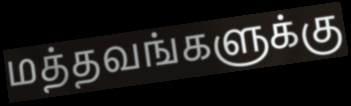
மத்தவங்களுக்கு